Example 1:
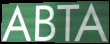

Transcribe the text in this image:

ABTA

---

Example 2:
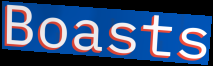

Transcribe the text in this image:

Boasts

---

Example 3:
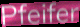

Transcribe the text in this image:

Pfeifer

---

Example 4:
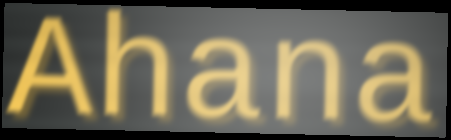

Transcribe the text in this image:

Ahana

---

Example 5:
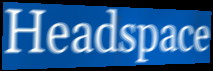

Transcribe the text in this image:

Headspace